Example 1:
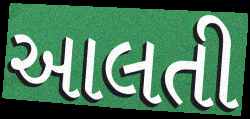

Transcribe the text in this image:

આલતી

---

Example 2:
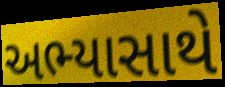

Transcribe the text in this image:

અભ્યાસાથે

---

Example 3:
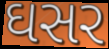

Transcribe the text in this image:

ઘસર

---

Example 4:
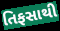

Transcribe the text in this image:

તિફસાથી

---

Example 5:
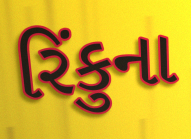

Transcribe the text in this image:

રિંકુના